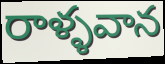
రాళ్ళవాన